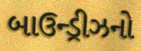
બાઉન્ડ્રીઝનો